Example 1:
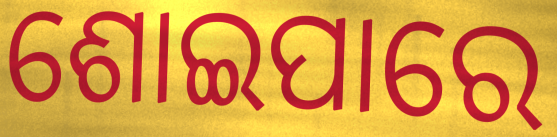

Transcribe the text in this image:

ଶୋଇପାରେ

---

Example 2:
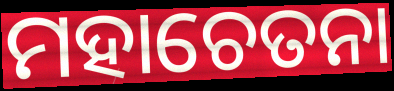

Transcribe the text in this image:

ମହାଚେତନା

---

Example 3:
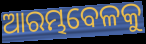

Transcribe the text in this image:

ଆରମ୍ଭବେଳକୁ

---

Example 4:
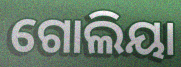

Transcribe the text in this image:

ଗୋଲିୟା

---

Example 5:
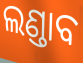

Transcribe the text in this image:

ଲଣ୍ଡାବ